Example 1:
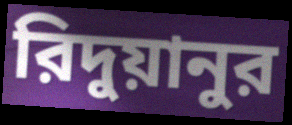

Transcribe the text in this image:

রিদুয়ানুর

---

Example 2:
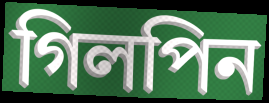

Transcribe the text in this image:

গিলপিন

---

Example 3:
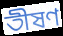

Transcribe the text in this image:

তীষণ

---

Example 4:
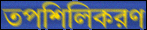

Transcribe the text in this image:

তপশিলিকরণ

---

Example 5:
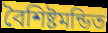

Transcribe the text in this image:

বৈশিষ্টমন্ডিত